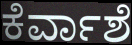
ಕೆರ್ವಾಶೆ